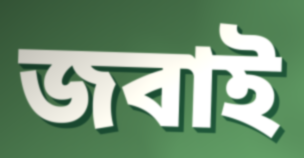
জবাই